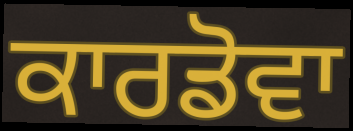
ਕਾਰਡੋਵਾ